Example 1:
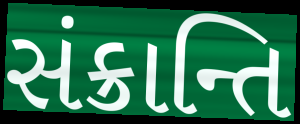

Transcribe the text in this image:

સંક્રાન્તિ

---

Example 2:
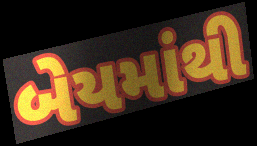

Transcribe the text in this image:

બેયમાંથી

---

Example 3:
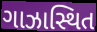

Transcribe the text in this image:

ગાઝાસ્થિત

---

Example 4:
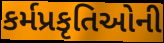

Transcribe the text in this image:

કર્મપ્રકૃતિઓની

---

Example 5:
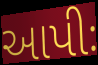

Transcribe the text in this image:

આપીઃ